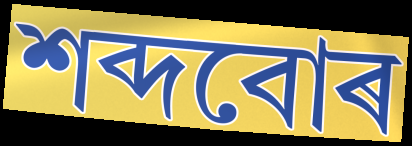
শব্দবোৰ